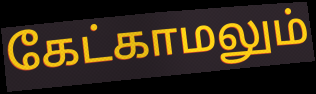
கேட்காமலும்